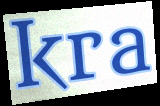
kra